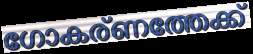
ഗോകര്ണത്തേക്ക്